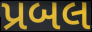
પ્રબલ